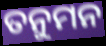
ତନୁମନ